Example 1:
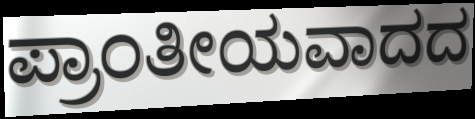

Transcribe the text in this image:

ಪ್ರಾಂತೀಯವಾದದ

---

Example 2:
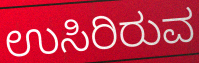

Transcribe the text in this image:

ಉಸಿರಿರುವ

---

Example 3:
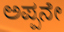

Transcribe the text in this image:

ಅಪ್ಪನೇ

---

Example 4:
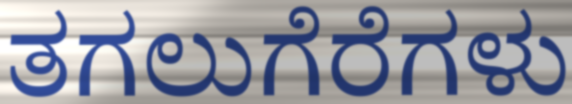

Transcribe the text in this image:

ತಗಲುಗೆರೆಗಳು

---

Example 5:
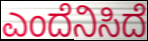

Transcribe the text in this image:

ಎಂದೆನಿಸಿದೆ